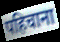
पहिचाना